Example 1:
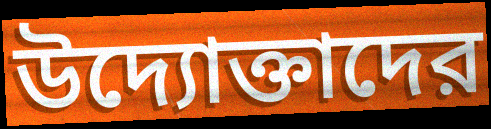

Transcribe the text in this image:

উদ্যোক্তাদের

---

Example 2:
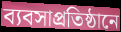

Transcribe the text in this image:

ব্যবসাপ্রতিষ্ঠানে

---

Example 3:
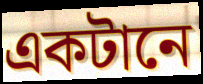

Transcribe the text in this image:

একটানে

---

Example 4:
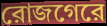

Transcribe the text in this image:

রোজগেরে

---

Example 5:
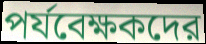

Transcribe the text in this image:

পর্যবেক্ষকদের